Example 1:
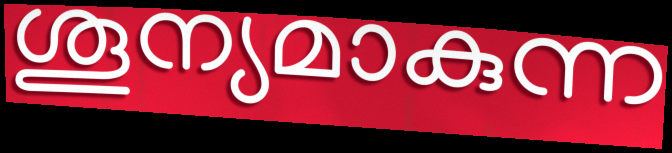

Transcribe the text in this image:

ശൂന്യമാകുന്ന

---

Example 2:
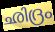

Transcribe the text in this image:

ഛിദ്രം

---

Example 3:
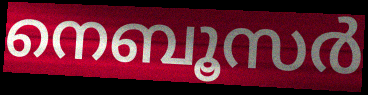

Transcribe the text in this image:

നെബൂസർ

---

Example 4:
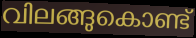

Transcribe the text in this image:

വിലങ്ങുകൊണ്ട്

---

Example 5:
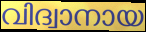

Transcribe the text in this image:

വിദ്വാനായ